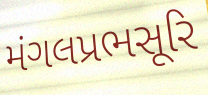
મંગલપ્રભસૂરિ